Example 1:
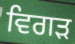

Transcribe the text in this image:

ਵਿਗੜ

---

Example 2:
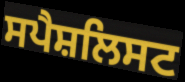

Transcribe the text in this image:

ਸਪੈਸ਼ਲਿਸਟ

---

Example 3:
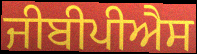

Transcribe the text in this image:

ਜੀਬੀਪੀਐਸ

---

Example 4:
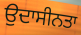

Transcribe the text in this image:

ਉਦਾਸੀਨਤਾ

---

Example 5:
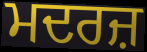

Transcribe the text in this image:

ਮਦਰਜ਼